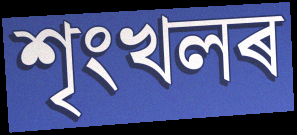
শৃংখলৰ